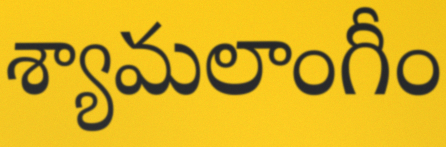
శ్యామలాంగీం